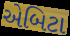
એબિટા